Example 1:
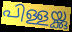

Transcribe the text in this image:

പിള്ളയ്ക്കു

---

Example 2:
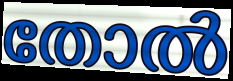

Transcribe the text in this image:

തോൽ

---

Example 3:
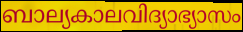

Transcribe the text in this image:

ബാല്യകാലവിദ്യാഭ്യാസം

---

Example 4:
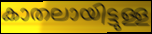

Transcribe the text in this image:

കാതലായിട്ടുള്ള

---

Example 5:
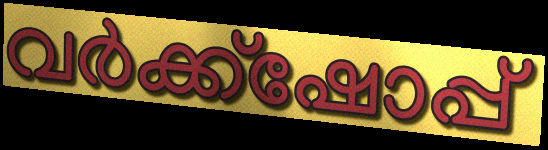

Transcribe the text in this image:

വർക്ക്ഷോപ്പ്